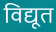
विद्यूत